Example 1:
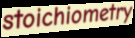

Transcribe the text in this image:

stoichiometry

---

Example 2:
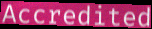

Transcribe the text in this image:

Accredited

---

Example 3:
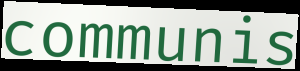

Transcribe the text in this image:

communis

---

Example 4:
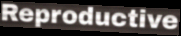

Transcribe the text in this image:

Reproductive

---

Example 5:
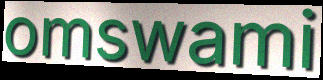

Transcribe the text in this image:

omswami